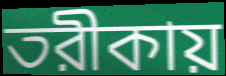
তরীকায়